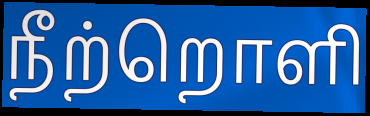
நீற்றொளி